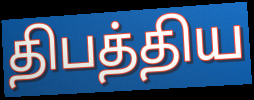
திபத்திய